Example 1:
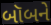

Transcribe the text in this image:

બૉબને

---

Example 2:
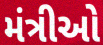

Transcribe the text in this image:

મંત્રીઓ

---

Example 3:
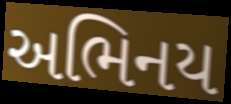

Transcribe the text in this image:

અભિનય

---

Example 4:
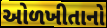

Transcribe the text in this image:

ઓળખીતાનો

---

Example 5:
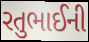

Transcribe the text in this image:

રતુભાઈની